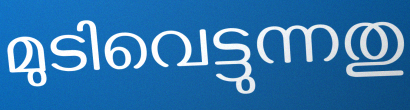
മുടിവെട്ടുന്നതു